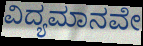
ವಿದ್ಯಮಾನವೇ